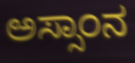
ಅಸ್ಸಾಂನ